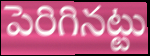
పెరిగినట్టు